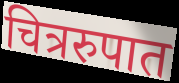
चित्ररुपात